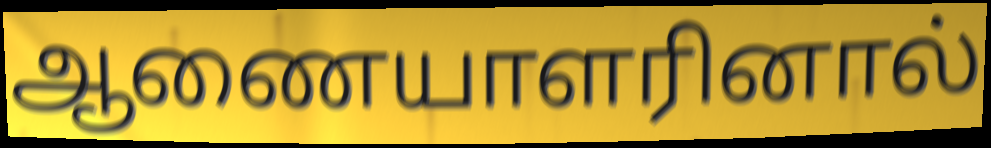
ஆணையாளரினால்